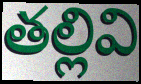
తల్లివి